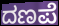
ದಣಪೆ